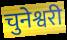
चुनेश्वरी